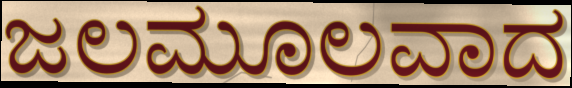
ಜಲಮೂಲವಾದ